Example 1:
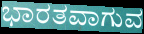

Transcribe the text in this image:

ಭಾರತವಾಗುವ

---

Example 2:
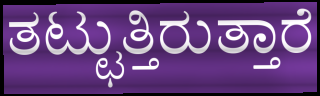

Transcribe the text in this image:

ತಟ್ಟುತ್ತಿರುತ್ತಾರೆ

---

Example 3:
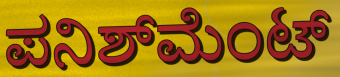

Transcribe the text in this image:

ಪನಿಶ್‌ಮೆಂಟ್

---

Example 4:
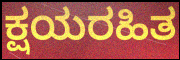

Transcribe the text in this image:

ಕ್ಷಯರಹಿತ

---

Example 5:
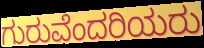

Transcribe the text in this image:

ಗುರುವೆಂದರಿಯರು